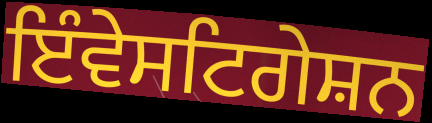
ਇੰਵੇਸਟਿਗੇਸ਼ਨ